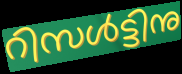
റിസൾട്ടിനു